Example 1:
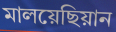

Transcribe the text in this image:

মালয়েছিয়ান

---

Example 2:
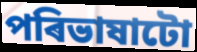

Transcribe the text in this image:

পৰিভাষাটো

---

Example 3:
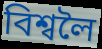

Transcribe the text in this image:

বিশ্বলৈ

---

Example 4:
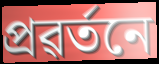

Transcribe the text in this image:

প্ৰৱৰ্তনে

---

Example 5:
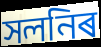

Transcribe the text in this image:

সলনিৰ